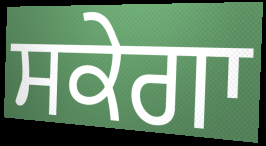
ਸਕੇਗਾ